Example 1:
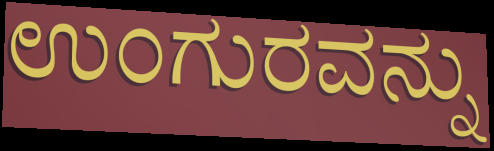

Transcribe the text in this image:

ಉಂಗುರವನ್ನು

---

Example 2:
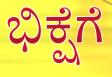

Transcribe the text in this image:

ಭಿಕ್ಷೆಗೆ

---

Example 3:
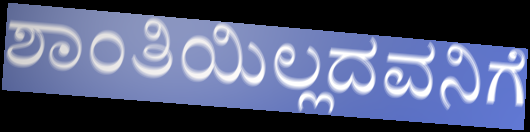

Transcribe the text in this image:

ಶಾಂತಿಯಿಲ್ಲದವನಿಗೆ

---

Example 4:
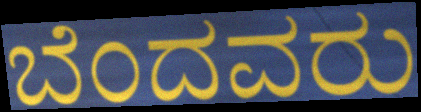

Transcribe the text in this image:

ಬೆಂದವರು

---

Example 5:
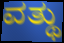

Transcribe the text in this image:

ವತ್ಥು